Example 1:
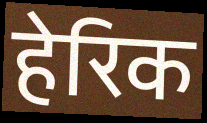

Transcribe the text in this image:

हेरिक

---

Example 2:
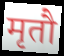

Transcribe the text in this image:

मृतौ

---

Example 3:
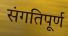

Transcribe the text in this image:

संगतिपूर्ण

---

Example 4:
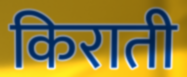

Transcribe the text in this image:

किराती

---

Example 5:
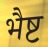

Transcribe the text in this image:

भैष्ट